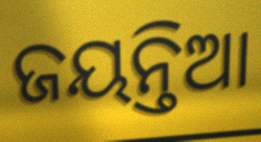
ଜୟନ୍ତିଆ